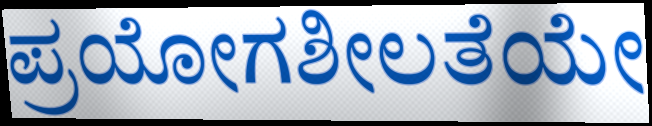
ಪ್ರಯೋಗಶೀಲತೆಯೇ